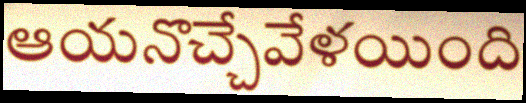
ఆయనొచ్చేవేళయింది